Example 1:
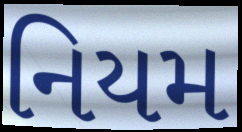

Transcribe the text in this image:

નિયમ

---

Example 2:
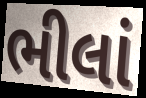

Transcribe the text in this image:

ભીલાં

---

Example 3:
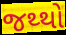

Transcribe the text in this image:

જથ્થો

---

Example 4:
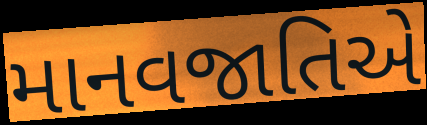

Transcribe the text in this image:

માનવજાતિએ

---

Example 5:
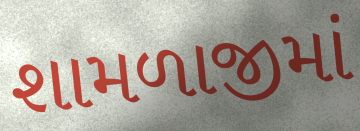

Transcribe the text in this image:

શામળાજીમાં